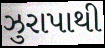
ઝુરાપાથી